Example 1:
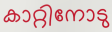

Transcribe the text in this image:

കാറ്റിനോടു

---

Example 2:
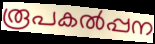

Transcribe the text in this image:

രൂപകൽപ്പന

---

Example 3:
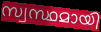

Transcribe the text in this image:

സ്വസ്ഥമായി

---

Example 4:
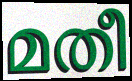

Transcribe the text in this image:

മതീ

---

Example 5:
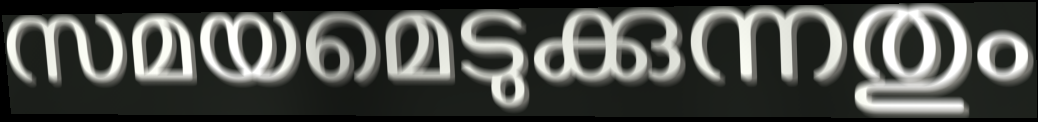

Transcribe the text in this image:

സമയമെടുക്കുന്നതും